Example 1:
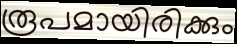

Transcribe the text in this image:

രൂപമായിരിക്കും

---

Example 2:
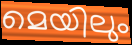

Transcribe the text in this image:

മെയിലും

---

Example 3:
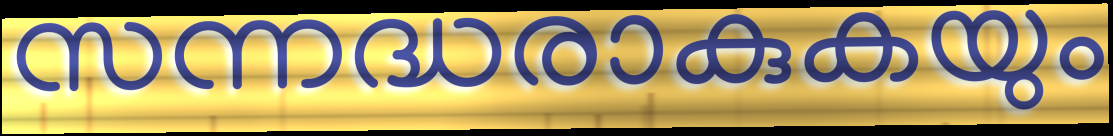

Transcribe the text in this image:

സന്നദ്ധരാകുകയും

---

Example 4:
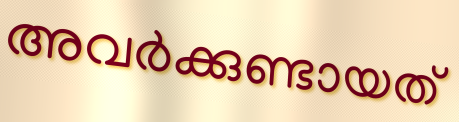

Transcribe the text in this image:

അവർക്കുണ്ടായത്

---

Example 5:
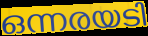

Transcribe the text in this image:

ഒന്നരയടി